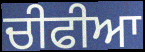
ਚੀਫੀਆ